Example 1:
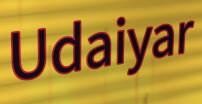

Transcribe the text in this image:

Udaiyar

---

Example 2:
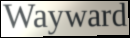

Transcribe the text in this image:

Wayward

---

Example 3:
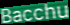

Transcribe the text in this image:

Bacchu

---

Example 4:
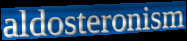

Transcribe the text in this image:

aldosteronism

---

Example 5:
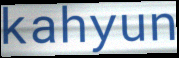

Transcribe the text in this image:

kahyun